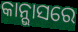
କାନ୍ଭାସରେ